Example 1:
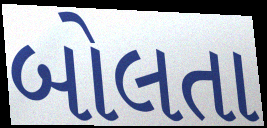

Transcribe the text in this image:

બોલતા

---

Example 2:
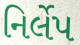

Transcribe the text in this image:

નિર્લેપ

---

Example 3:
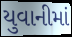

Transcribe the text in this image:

યુવાનીમાં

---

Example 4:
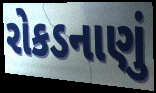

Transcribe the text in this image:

રોકડનાણું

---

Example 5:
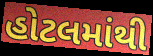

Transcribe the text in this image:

હોટલમાંથી